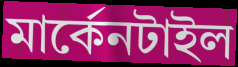
মার্কেনটাইল